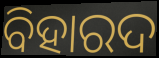
ବିହାରଦ